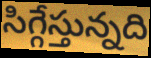
సిగ్గేస్తున్నది